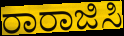
ರಾರಾಜಿಸಿ